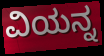
ವಿಯನ್ನ